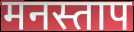
मनस्ताप